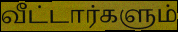
வீட்டார்களும்